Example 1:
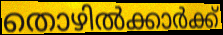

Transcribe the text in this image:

തൊഴിൽക്കാർക്ക്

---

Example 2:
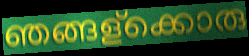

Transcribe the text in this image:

ഞങ്ങള്ക്കൊരു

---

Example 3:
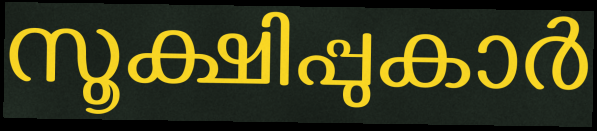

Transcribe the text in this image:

സൂക്ഷിപ്പുകാർ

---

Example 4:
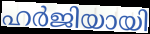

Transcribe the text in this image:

ഹർജിയായി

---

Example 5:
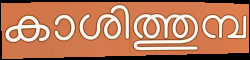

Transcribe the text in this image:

കാശിത്തുമ്പ